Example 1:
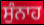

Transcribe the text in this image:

ਸੁੰਨਾਹ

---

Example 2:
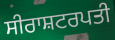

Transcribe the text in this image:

ਸੀਰਾਸ਼ਟਰਪਤੀ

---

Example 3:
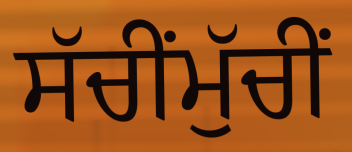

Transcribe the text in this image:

ਸੱਚੀਂਮੁੱਚੀਂ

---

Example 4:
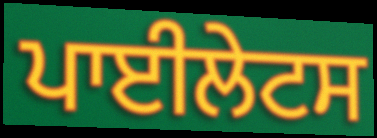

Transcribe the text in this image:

ਪਾਈਲੇਟਸ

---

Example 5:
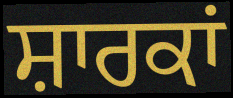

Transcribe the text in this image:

ਸ਼ਾਰਕਾਂ